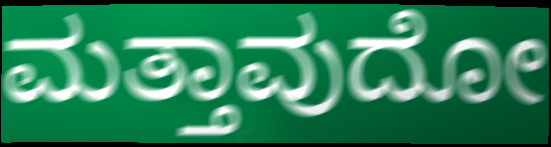
ಮತ್ತಾವುದೋ